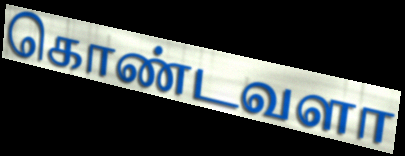
கொண்டவளா